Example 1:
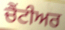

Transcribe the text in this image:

ਚੈਂਟੀਅਰ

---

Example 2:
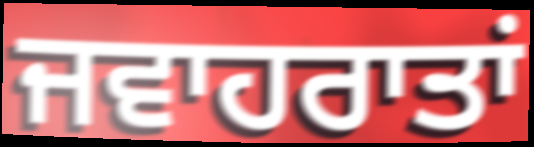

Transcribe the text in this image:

ਜਵਾਹਰਾਤਾਂ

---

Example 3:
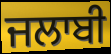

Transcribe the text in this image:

ਜਲਾਬੀ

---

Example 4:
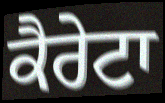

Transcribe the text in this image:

ਕੈਰੇਟਾ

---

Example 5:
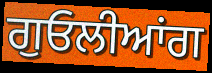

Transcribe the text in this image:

ਗੁਓਲੀਆਂਗ